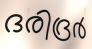
ദരിദ്രർ